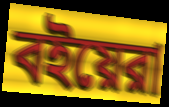
বইয়েরা